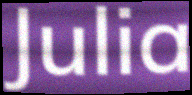
Julia